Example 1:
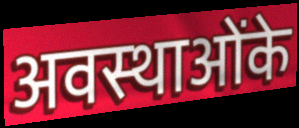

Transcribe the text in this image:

अवस्थाओंके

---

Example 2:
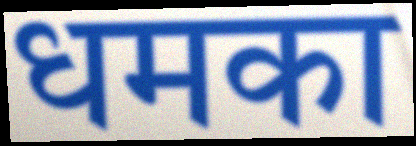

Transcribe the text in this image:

धमका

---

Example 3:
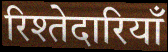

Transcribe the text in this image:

रिश्तेदारियाँ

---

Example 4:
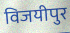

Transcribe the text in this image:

विजयीपुर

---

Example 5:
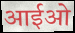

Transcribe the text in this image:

आईओ